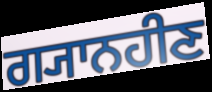
ਗ੍ਯਾਨਹੀਣ